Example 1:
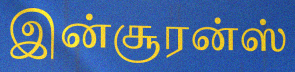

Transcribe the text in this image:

இன்சூரன்ஸ்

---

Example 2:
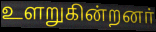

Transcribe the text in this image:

உளறுகின்றனர்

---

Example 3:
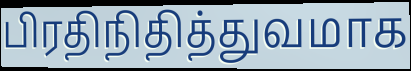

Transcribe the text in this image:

பிரதிநிதித்துவமாக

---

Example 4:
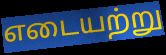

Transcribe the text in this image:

எடையற்று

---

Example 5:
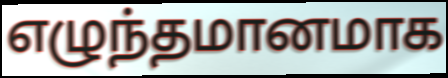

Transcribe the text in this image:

எழுந்தமானமாக